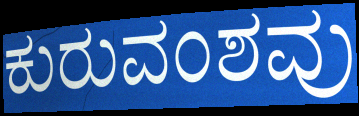
ಕುರುವಂಶವು